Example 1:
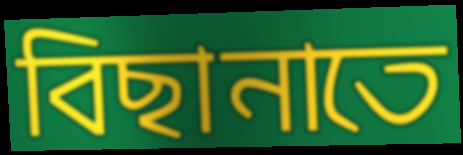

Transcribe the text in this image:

বিছানাতে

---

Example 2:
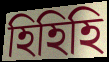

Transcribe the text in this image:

হিহিহি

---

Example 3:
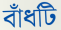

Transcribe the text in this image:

বাঁধটি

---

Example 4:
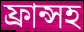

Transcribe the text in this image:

ফ্রান্সহ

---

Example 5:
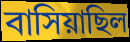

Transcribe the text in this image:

বাসিয়াছিল